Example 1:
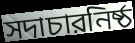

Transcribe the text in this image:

সদাচারনিষ্ঠ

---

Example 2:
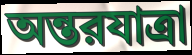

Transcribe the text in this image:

অন্তরযাত্রা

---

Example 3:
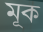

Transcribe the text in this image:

মূক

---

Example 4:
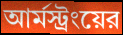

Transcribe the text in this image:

আর্মস্ট্রংয়ের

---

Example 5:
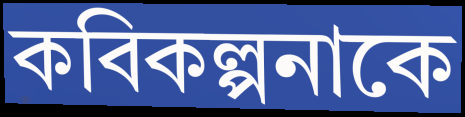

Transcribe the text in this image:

কবিকল্পনাকে